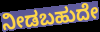
ನೀಡಬಹುದೇ